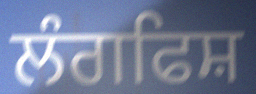
ਲੰਗਫਿਸ਼